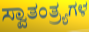
ಸ್ವಾತಂತ್ರ್ಯಗಳ